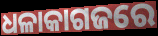
ଧଳାକାଗଜରେ